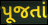
પૂજતાં